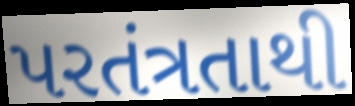
પરતંત્રતાથી